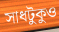
সাধটুকুও